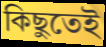
কিছুতেই